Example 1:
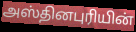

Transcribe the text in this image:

அஸ்தினபுரியின்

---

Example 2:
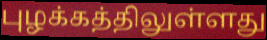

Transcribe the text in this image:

புழக்கத்திலுள்ளது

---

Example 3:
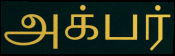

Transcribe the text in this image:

அக்பர்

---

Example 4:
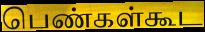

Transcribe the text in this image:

பெண்கள்கூட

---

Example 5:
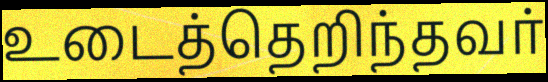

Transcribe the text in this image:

உடைத்தெறிந்தவர்